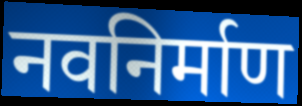
नवनिर्माण